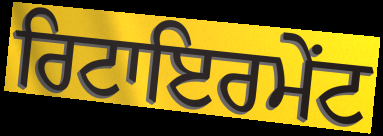
ਰਿਟਾਇਰਮੇਂਟ